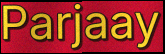
Parjaay